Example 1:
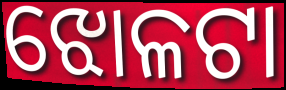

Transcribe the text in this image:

ଝୋଳଟା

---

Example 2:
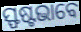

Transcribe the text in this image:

ସ୍ଫଷ୍ଟଭାବେ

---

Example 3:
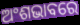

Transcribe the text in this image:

ଅଂଶଭାବରେ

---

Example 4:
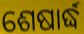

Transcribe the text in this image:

ଶେଷାର୍ଦ୍ଧ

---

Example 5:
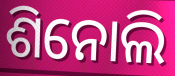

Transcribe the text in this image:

ଶିନୋଲି